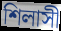
শিলাসী